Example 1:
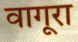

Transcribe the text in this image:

वागूरा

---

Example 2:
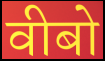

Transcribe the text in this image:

वीबो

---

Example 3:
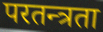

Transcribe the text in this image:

परतन्त्रता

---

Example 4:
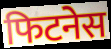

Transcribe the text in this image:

फिटनेस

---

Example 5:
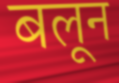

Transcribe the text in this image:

बलून